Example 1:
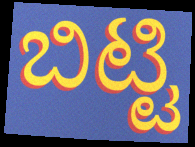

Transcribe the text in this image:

ಬಿಟ್ಟಿ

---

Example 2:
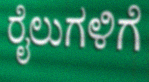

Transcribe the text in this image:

ರೈಲುಗಳಿಗೆ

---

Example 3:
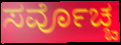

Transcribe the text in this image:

ಸರ್ವೊಚ್ಚ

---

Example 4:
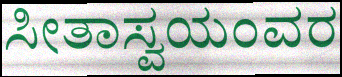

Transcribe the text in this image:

ಸೀತಾಸ್ವಯಂವರ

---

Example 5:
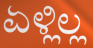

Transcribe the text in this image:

ಏಳ್ಲಿಲ್ಲ